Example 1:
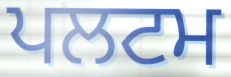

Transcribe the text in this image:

ਪਲਟਮ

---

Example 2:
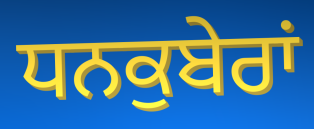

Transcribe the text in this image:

ਧਨਕੁਬੇਰਾਂ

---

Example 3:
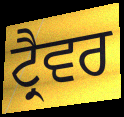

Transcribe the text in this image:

ਟ੍ਰੈਵਰ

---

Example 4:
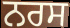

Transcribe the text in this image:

ਨਰਸ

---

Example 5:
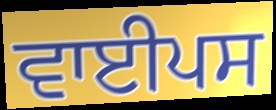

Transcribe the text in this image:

ਵਾਈਪਸ